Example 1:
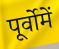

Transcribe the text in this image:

पूर्वोमें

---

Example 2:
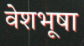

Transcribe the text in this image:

वेशभूषा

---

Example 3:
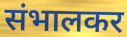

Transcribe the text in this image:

संभालकर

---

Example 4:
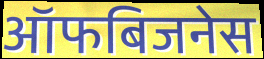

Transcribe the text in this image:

ऑफबिजनेस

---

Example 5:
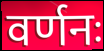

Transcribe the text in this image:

वर्णनः